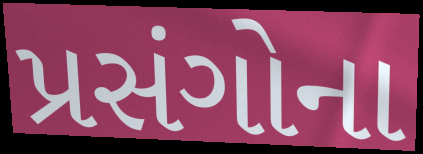
પ્રસંગોના